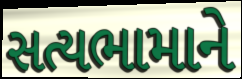
સત્યભામાને